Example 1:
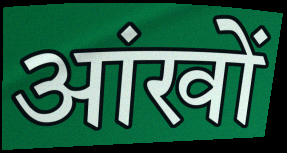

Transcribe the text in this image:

आंखों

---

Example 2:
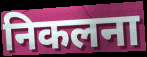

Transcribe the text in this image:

निकलना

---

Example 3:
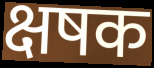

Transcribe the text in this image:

क्षषक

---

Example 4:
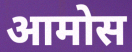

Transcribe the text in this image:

आमोस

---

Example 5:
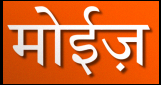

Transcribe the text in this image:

मोईज़